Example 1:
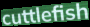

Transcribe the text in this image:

cuttlefish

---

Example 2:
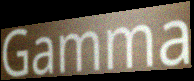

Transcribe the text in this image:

Gamma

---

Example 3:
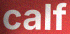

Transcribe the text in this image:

calf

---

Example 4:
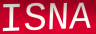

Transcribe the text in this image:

ISNA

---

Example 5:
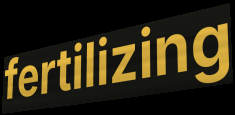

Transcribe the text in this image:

fertilizing